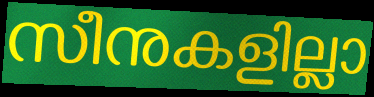
സീനുകളില്ലാ